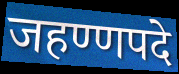
जहण्णपदे